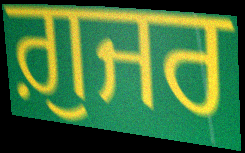
ਗ਼ੁਜਰ